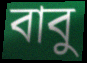
বাবু